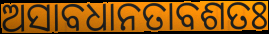
ଅସାବଧାନତାବଶତଃ